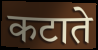
कटाते